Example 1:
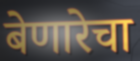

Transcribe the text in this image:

बेणारेचा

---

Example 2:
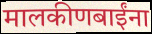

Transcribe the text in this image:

मालकीणबाईंना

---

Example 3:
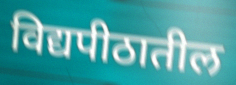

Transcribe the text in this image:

विद्यपीठातील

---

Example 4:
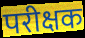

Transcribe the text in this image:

परीक्षक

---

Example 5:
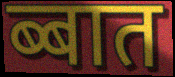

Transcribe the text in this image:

ब्बात